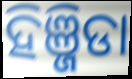
ହିଞ୍ଜିଡା